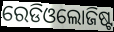
ରେଡିଓଲୋଜିଷ୍ଟ